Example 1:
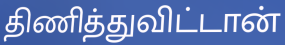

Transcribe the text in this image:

திணித்துவிட்டான்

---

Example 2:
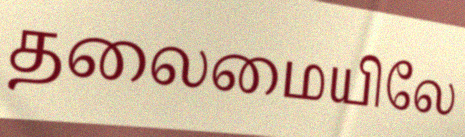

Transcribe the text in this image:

தலைமையிலே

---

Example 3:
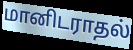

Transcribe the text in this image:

மானிடராதல்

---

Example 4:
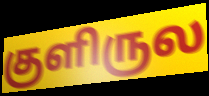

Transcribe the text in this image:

குளிருல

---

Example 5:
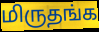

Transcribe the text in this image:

மிருதங்க